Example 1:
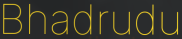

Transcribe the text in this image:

Bhadrudu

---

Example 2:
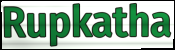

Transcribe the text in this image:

Rupkatha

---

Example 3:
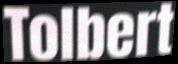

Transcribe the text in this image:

Tolbert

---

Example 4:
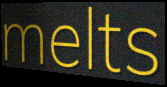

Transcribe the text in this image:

melts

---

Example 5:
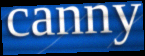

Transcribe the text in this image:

canny